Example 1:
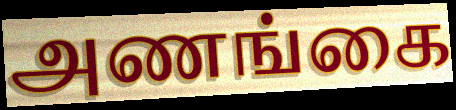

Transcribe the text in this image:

அணங்கை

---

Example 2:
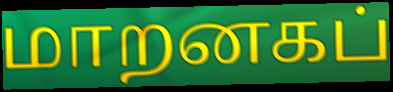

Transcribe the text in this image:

மாறனகப்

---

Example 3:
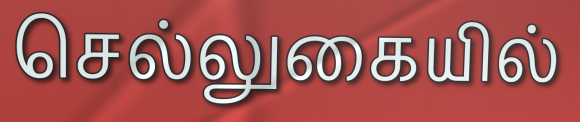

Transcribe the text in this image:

செல்லுகையில்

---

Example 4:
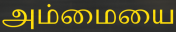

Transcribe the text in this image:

அம்மையை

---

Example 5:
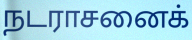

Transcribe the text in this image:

நடராசனைக்